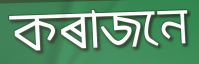
কৰাজনে